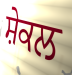
ਸ਼ੇਕਲ